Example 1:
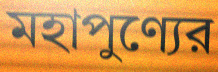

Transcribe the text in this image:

মহাপুণ্যের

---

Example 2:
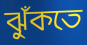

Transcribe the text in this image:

ঝুঁকতে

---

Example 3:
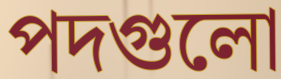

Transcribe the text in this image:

পদগুলো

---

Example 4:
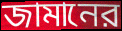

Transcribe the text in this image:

জামানের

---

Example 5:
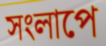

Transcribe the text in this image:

সংলাপে